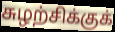
சுழற்சிக்குக்